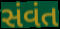
સંવંત